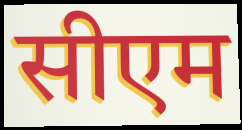
सीएम